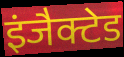
इंजैक्टेड